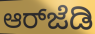
ಆರ್‌ಜೆಡಿ